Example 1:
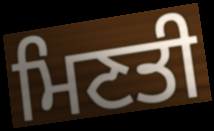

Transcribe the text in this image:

ਮਿਣਤੀ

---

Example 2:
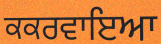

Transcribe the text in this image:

ਕਕਰਵਾਇਆ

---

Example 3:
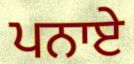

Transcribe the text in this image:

ਪਨਾਏ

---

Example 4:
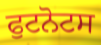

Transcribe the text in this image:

ਫੁਟਨੋਟਸ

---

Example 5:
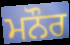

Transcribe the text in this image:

ਮਨੌਰ